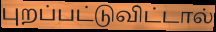
புறப்பட்டுவிட்டால்